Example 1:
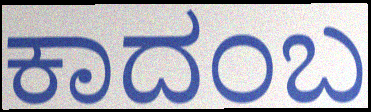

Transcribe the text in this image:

ಕಾದಂಬ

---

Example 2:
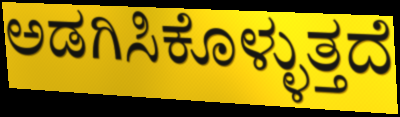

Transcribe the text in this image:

ಅಡಗಿಸಿಕೊಳ್ಳುತ್ತದೆ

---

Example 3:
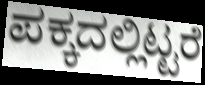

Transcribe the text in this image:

ಪಕ್ಕದಲ್ಲಿಟ್ಟರೆ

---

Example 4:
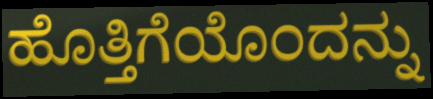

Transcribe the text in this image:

ಹೊತ್ತಿಗೆಯೊಂದನ್ನು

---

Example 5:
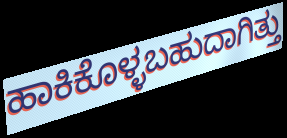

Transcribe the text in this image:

ಹಾಕಿಕೊಳ್ಳಬಹುದಾಗಿತ್ತು